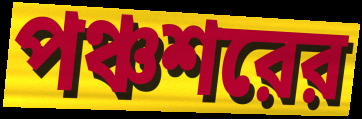
পঞ্চশরের